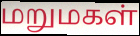
மறுமகள்